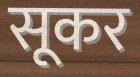
सूकर